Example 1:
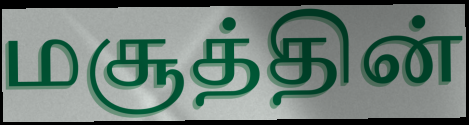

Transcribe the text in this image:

மசூத்தின்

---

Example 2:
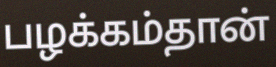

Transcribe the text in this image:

பழக்கம்தான்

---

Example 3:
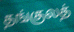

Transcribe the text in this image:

தங்குலத்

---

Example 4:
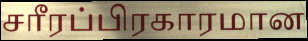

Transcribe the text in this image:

சரீரப்பிரகாரமான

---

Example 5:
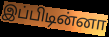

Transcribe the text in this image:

இப்பிடின்னா